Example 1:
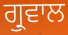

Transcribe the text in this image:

ਗ੍ਰੁਵਾਲ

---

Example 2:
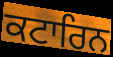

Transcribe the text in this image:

ਕਟਾਰਿਨ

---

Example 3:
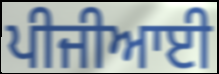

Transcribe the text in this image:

ਪੀਜੀਆਈ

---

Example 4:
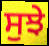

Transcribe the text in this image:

ਸੁਝੇ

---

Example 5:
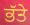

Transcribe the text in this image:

ਭੱਤੇ